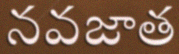
నవజాత